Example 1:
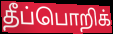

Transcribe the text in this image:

தீப்பொறிக்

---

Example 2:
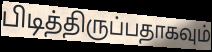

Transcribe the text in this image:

பிடித்திருப்பதாகவும்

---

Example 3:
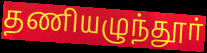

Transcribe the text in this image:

தணியழுந்தூர்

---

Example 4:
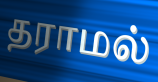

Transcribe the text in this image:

தராமல்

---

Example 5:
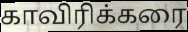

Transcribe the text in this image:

காவிரிக்கரை